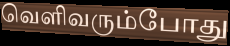
வெளிவரும்போது